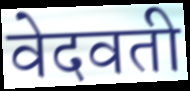
वेदवती